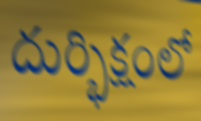
దుర్భిక్షంలో